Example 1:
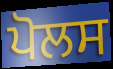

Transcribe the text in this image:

ਪੋਲਸ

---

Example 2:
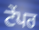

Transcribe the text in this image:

ਟੇਂਪਰ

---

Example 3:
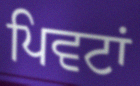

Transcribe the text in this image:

ਪਿਵਟਾਂ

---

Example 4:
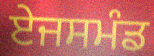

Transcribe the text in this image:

ਏਜਸਮੰਡ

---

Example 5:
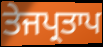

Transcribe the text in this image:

ਤੇਜਪ੍ਰਤਾਪ